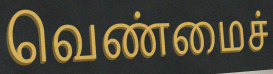
வெண்மைச்